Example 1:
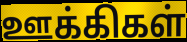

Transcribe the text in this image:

ஊக்கிகள்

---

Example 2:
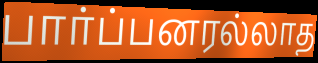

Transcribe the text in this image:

பார்ப்பனரல்லாத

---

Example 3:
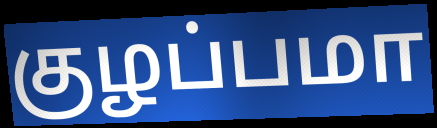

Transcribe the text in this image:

குழப்பமா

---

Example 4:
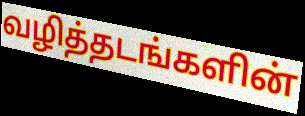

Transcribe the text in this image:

வழித்தடங்களின்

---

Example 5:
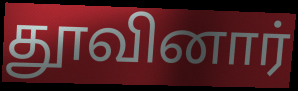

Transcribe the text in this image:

தூவினார்